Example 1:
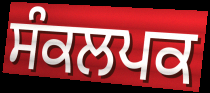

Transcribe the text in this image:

ਸੰਕਲਪਕ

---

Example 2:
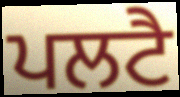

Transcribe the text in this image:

ਪਲਟੈ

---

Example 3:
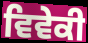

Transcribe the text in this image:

ਵਿਵੇਕੀ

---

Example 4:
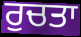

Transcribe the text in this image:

ਰੁਚਤਾ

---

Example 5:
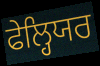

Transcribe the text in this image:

ਫੇਲ੍ਹਿਯਰ